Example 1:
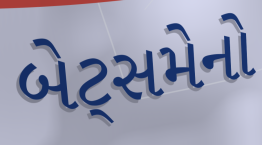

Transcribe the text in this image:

બેટ્સમેનો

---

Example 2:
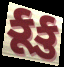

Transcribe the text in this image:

કૂકુ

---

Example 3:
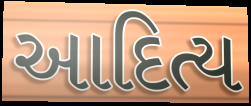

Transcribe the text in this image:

આદિત્ય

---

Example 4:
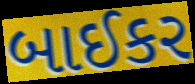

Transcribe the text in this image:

બાઈકર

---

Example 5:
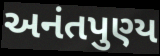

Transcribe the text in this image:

અનંતપુણ્ય